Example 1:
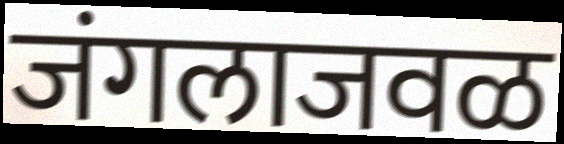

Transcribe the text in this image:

जंगलाजवळ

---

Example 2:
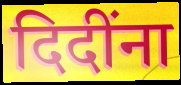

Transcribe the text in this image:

दिदींना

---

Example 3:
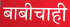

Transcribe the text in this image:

बाबीचाही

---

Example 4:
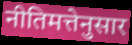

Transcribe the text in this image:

नीतिमत्तेनुसार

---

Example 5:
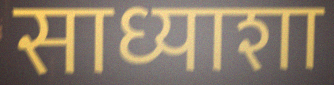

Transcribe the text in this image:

साध्याशा